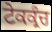
ਟੇਕਕ੍ਰੰਚ